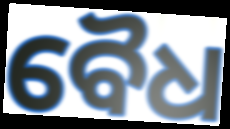
ବୈଧ